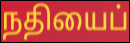
நதியைப்